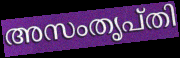
അസംതൃപ്തി